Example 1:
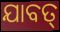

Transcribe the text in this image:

ଯାବତ୍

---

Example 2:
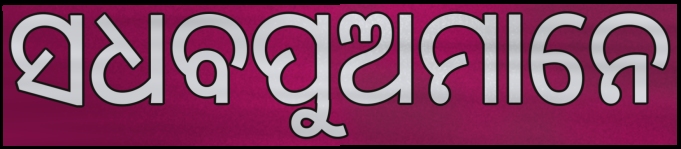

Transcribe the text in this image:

ସଧବପୁଅମାନେ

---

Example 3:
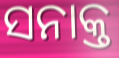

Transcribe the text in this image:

ସନାକ୍ତ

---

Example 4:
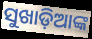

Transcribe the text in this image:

ସୁଖାଡ଼ିଆଙ୍କ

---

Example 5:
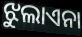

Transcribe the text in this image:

ଝୁଲାଏନା